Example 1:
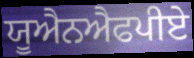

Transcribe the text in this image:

ਯੂਐਨਐਫਪੀਏ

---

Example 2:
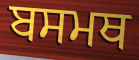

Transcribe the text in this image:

ਬਸਮਥ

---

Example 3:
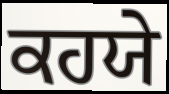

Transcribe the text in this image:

ਕਹਯੇ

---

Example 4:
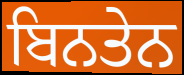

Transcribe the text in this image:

ਬਿਨਤੇਨ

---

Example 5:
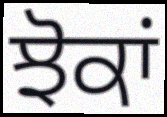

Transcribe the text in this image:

ਝੋਕਾਂ